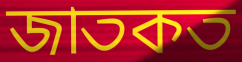
জাতকত